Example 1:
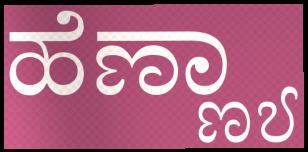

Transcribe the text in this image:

ಹೆಣ್ಣ್ಯಾ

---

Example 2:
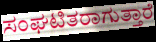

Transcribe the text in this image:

ಸಂಘಟಿತರಾಗುತ್ತಾರೆ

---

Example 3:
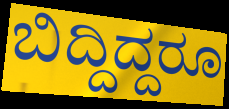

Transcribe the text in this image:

ಬಿದ್ದಿದ್ದರೂ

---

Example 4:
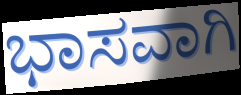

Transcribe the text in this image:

ಭಾಸವಾಗಿ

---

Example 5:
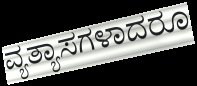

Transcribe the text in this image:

ವ್ಯತ್ಯಾಸಗಳಾದರೂ